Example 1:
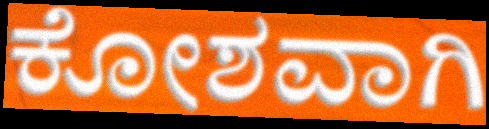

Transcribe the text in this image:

ಕೋಶವಾಗಿ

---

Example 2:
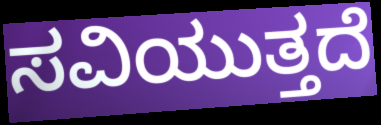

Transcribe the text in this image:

ಸವಿಯುತ್ತದೆ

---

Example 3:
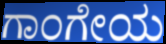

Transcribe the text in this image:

ಗಾಂಗೇಯ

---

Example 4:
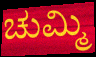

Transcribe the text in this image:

ಚುಮ್ಮಿ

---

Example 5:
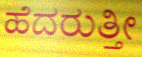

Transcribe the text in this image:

ಹೆದರುತ್ತೀ